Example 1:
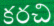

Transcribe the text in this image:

కరచి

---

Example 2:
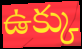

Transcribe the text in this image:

ఉక్కు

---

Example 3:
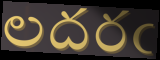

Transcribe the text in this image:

లదరఁ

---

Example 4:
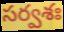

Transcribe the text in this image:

సర్వశః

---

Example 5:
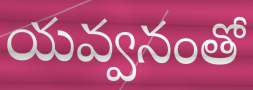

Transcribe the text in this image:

యవ్వనంతో